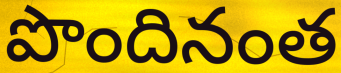
పొందినంత